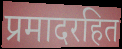
प्रमादरहित